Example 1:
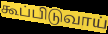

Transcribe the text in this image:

கூப்பிடுவாய்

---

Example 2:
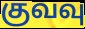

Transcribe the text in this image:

குவவு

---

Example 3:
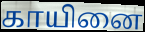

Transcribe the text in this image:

காயினை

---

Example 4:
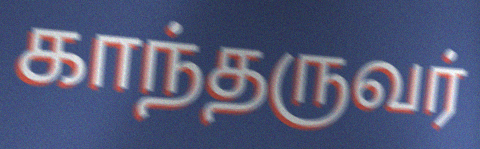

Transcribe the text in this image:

காந்தருவர்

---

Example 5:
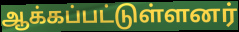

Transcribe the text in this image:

ஆக்கப்பட்டுள்ளனர்